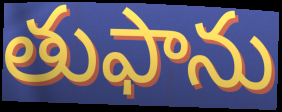
తుఫాను